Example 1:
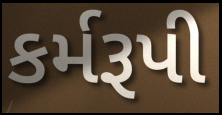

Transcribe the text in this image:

કર્મરૂપી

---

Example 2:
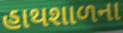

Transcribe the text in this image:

હાથશાળના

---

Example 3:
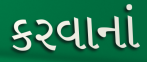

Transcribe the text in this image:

કરવાનાં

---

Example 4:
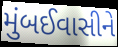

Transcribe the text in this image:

મુંબઈવાસીને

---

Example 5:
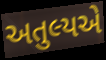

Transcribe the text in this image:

અતુલ્યએ